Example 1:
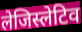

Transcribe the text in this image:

लेजिस्लेटिव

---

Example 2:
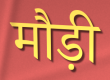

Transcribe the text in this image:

मौड़ी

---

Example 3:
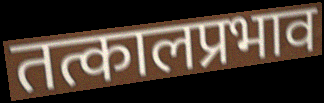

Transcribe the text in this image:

तत्कालप्रभाव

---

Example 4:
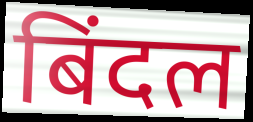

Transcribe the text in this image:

बिंदल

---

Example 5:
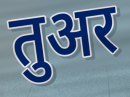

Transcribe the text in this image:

तुअर